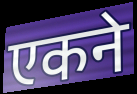
एकने